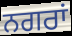
ਨਗਰਾਂ